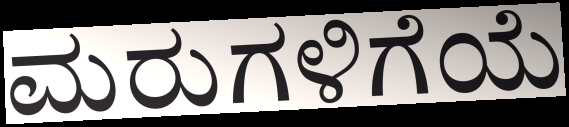
ಮರುಗಳಿಗೆಯೆ